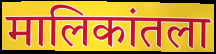
मालिकांतला